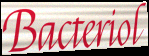
Bacteriol